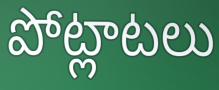
పోట్లాటలు